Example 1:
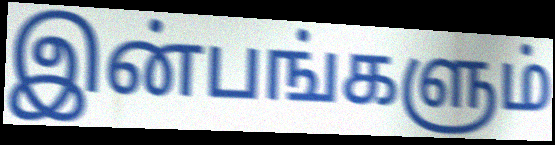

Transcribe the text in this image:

இன்பங்களும்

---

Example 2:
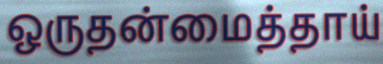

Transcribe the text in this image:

ஒருதன்மைத்தாய்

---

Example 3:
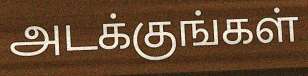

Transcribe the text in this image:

அடக்குங்கள்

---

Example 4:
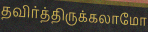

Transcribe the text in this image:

தவிர்த்திருக்கலாமோ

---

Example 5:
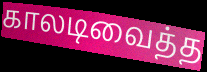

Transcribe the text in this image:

காலடிவைத்த